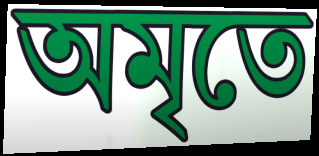
অমৃতে